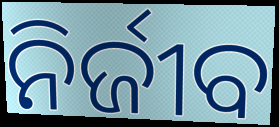
ନିର୍ଜୀବ